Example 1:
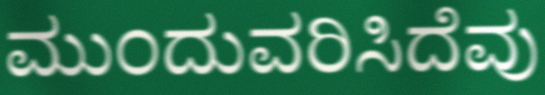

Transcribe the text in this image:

ಮುಂದುವರಿಸಿದೆವು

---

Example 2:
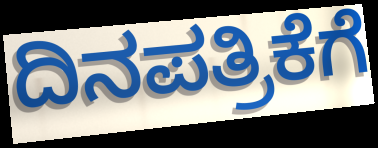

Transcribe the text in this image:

ದಿನಪತ್ರಿಕೆಗೆ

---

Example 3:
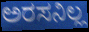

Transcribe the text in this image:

ಅರಸನಿಲ್ಲ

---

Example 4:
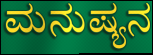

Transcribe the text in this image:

ಮನುಷ್ಯನ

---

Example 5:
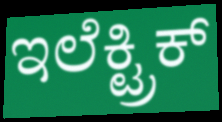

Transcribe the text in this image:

ಇಲೆಕ್ಟ್ರಿಕ್